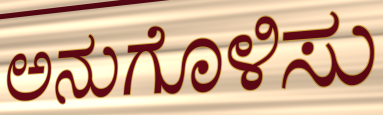
ಅನುಗೊಳಿಸು